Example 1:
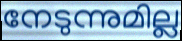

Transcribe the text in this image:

നേടുന്നുമില്ല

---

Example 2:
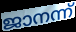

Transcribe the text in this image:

ജാനന്ന്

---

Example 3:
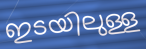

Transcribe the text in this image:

ഇടയിലുള്ള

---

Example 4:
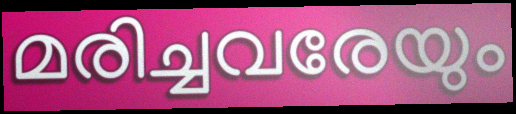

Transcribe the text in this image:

മരിച്ചവരേയും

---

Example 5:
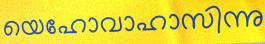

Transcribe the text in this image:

യെഹോവാഹാസിന്നു